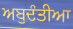
ਅਬੁਦੰਤੀਆ